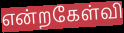
என்றகேள்வி